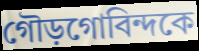
গৌড়গোবিন্দকে